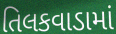
તિલકવાડામાં